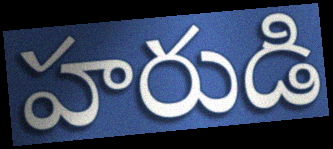
హరుడి